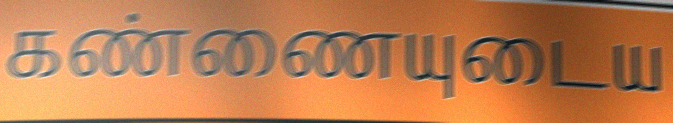
கண்ணையுடைய